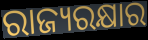
ରାଜ୍ୟରକ୍ଷାର